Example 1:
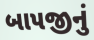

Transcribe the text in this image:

બાપજીનું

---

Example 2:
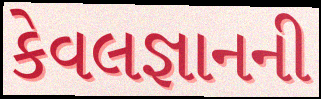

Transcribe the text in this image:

કેવલજ્ઞાનની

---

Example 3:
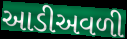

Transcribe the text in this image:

આડીઅવળી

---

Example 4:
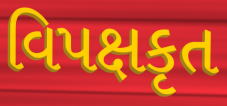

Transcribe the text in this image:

વિપક્ષકૃત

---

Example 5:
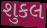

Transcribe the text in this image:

શુકલ